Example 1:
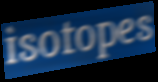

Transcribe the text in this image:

isotopes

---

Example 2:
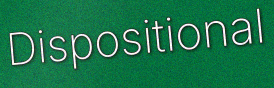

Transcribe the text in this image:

Dispositional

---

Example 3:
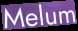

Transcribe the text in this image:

Melum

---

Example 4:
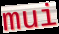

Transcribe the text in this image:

mui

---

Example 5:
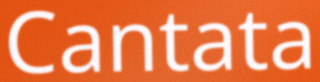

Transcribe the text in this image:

Cantata